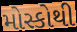
મોસ્કોથી